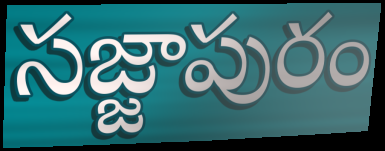
సజ్జాపురం